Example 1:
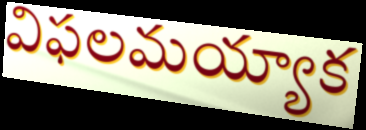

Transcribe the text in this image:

విఫలమయ్యాక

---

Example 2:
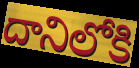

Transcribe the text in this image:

దానిలోకి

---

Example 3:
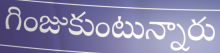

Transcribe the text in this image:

గింజుకుంటున్నారు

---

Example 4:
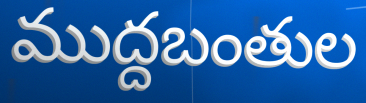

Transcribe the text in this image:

ముద్దబంతుల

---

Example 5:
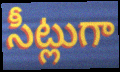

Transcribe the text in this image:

సీట్లుగా